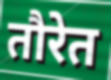
तौरेत